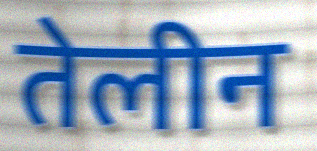
तेलीन